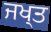
ਜਖ੍ਤ